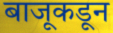
बाजूकडून